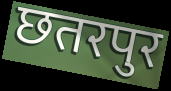
छतरपुर